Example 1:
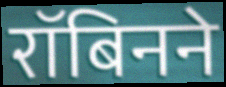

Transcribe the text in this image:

रॉबिनने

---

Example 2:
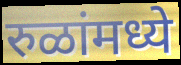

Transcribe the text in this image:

रुळांमध्ये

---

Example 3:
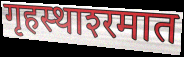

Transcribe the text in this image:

गृहस्थाश्रमात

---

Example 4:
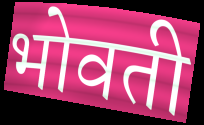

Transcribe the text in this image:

भोवती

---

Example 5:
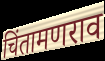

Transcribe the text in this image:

चिंतामणराव